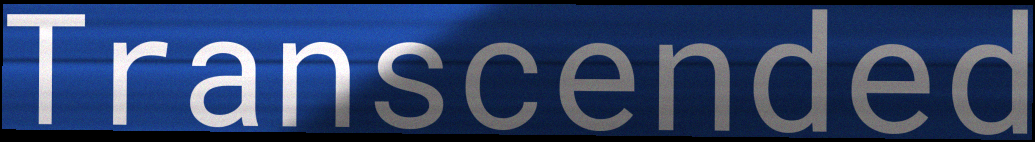
Transcended